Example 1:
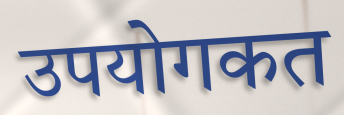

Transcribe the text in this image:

उपयोगकत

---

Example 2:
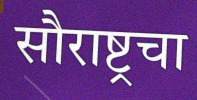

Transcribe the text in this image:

सौराष्ट्रचा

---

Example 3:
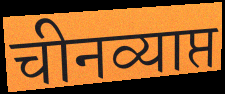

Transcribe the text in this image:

चीनव्याप्त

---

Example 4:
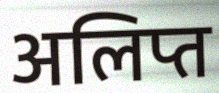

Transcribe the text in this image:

अलिप्त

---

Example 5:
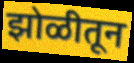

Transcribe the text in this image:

झोळीतून